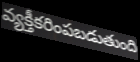
వ్యక్తీకరింపబడుతుంది